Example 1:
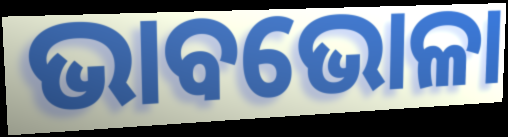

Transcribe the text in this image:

ଭାବଭୋଳା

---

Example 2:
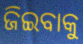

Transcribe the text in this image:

ଜିଇବାକୁ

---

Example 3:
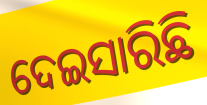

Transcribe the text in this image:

ଦେଇସାରିଛି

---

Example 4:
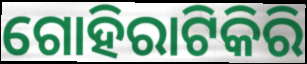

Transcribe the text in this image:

ଗୋହିରାଟିକିରି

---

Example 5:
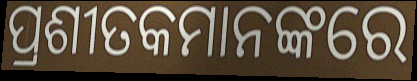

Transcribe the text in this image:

ପ୍ରଶୀତକମାନଙ୍କରେ